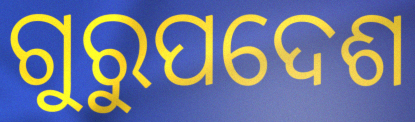
ଗୁରୁପଦେଶ